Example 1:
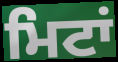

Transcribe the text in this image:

ਮਿਟਾਂ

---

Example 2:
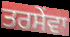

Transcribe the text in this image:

ਤਰਸੇਂਵਾ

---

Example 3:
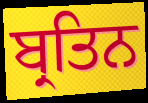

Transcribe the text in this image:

ਬ੍ਰਤਿਨ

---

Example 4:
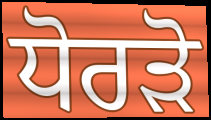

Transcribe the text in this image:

ਧੋਰੜੋ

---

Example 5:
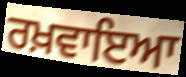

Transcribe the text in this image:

ਰਖ਼ਵਾਇਆ